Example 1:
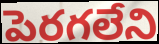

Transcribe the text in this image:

పెరగలేని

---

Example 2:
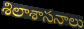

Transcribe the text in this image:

శిలాశాసనాలు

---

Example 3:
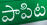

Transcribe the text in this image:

పాపిట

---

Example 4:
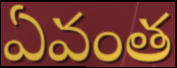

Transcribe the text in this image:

ఏవంత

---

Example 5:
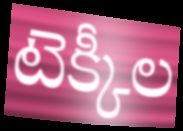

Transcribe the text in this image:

టెక్కీల